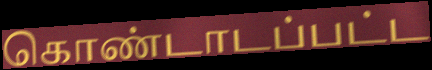
கொண்டாடப்பட்ட